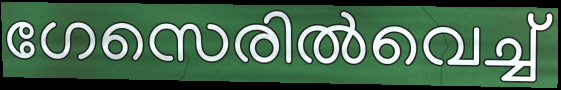
ഗേസെരിൽവെച്ച്